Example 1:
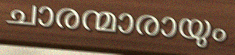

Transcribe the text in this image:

ചാരന്മാരായും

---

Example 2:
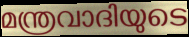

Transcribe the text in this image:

മന്ത്രവാദിയുടെ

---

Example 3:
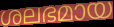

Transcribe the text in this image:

ശലഭമായ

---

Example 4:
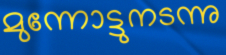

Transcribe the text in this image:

മുന്നോട്ടുനടന്നു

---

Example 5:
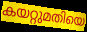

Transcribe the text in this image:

കയറ്റുമതിയെ